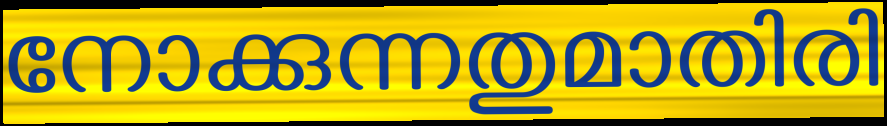
നോക്കുന്നതുമാതിരി